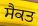
ਸੈਕਤ